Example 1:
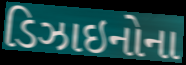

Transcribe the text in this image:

ડિઝાઇનોના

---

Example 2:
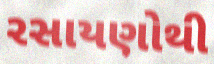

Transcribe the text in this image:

રસાયણોથી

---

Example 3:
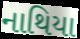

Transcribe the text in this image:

નાથિયા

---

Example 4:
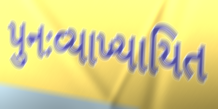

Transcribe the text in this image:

પુનઃવ્યાખ્યાયિત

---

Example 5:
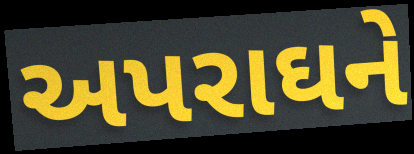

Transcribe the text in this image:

અપરાઘને